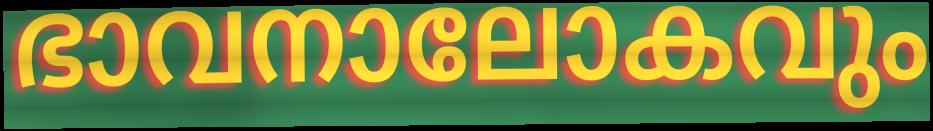
ഭാവനാലോകവും